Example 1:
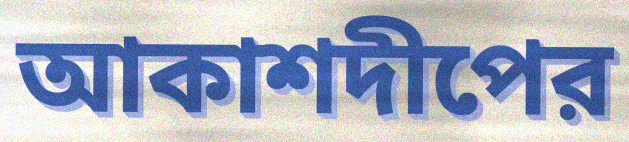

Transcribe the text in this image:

আকাশদীপের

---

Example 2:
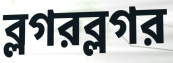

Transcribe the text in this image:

ব্লগরব্লগর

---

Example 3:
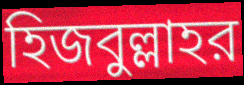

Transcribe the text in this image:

হিজবুল্লাহর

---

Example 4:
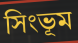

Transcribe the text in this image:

সিংভূম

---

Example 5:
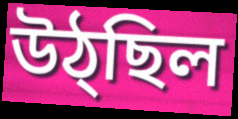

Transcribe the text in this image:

উঠ্ছিল